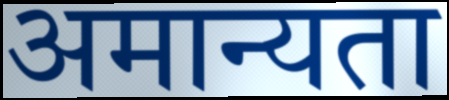
अमान्यता